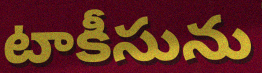
టాకీసును